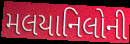
મલયાનિલોની